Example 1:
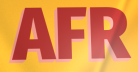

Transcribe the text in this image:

AFR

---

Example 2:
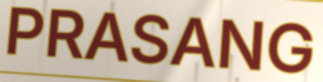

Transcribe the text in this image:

PRASANG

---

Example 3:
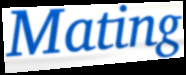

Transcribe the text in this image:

Mating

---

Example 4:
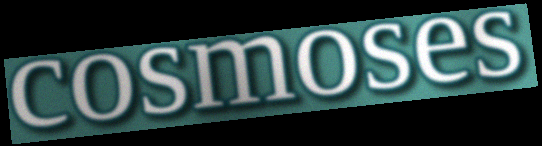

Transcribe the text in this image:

cosmoses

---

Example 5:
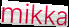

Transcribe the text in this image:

mikka